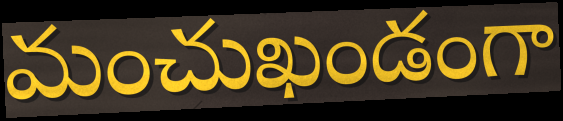
మంచుఖండంగా